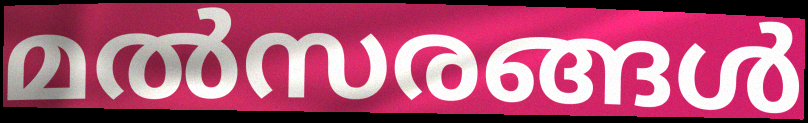
മൽസരങ്ങൾ